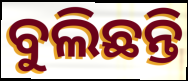
ବୁଲିଛନ୍ତି